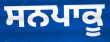
ਸਨਪਾਕੂ